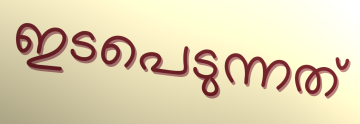
ഇടപെടുന്നത്